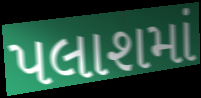
પલાશમાં